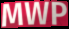
MWP